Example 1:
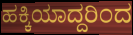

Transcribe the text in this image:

ಹಕ್ಕಿಯಾದ್ದರಿಂದ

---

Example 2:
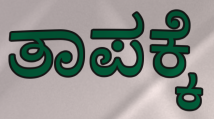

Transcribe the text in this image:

ತಾಪಕ್ಕೆ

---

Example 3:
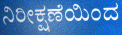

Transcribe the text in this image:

ನಿರೀಕ್ಷಣೆಯಿಂದ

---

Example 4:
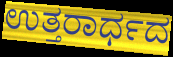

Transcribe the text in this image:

ಉತ್ತರಾರ್ಧದ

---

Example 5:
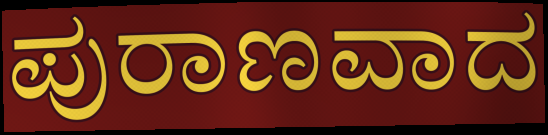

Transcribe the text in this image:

ಪುರಾಣವಾದ